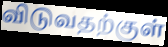
விடுவதற்குள்